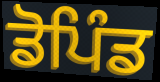
ਡੋਪਿੰਡ